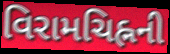
વિરામચિહ્નની